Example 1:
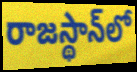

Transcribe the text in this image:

రాజస్థాన్‌లో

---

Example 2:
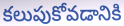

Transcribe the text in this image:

కలుపుకోవడానికి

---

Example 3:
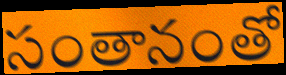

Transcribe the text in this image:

సంతానంతో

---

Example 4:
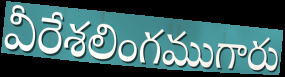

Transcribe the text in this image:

వీరేశలింగముగారు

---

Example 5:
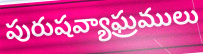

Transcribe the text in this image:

పురుషవ్యాఘ్రములు